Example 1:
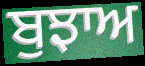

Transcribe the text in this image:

ਬੁਝਾਅ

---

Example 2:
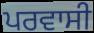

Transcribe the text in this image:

ਪਰਵਾਸੀ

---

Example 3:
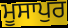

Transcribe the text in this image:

ਮੂਸਾਪੁਰ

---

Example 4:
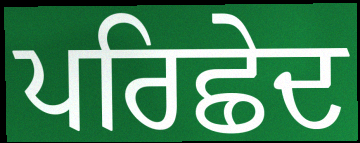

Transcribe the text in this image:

ਪਰਿਛੇਦ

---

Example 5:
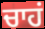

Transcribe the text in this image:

ਚਾਹਂ